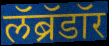
लॅब्रॅडॉर